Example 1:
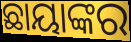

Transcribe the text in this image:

ଛାୟାଙ୍କର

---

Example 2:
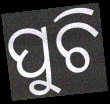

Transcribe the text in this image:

ପୁଚି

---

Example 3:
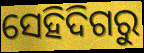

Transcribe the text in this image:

ସେହିଦିଗରୁ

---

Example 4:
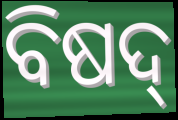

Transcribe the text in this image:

ବିଷଦ୍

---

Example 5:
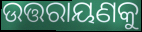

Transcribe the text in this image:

ଉତ୍ତରାୟଣକୁ